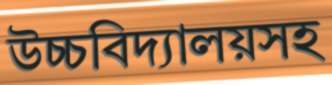
উচ্চবিদ্যালয়সহ